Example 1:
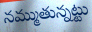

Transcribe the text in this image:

నమ్ముతున్నట్టు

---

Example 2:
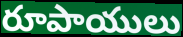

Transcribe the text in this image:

రూపాయులు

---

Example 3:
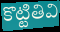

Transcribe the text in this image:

కొట్టితివి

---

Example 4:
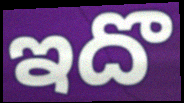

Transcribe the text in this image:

ఇదొ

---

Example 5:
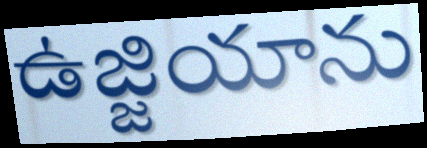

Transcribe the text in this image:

ఉజ్జియాను